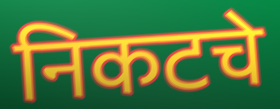
निकटचे